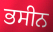
ਭਸੀਨ